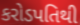
કરોડપતિથી